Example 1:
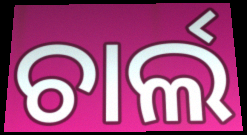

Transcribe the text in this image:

ଚାର୍ଲ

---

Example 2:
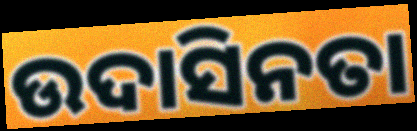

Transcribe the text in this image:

ଉଦାସିନତା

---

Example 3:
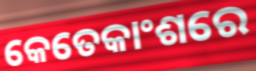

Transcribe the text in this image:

କେତେକାଂଶରେ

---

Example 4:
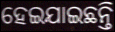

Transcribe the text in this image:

ହେଇଯାଇଛନ୍ତି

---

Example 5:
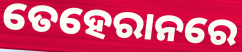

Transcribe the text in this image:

ତେହେରାନରେ